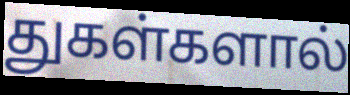
துகள்களால்